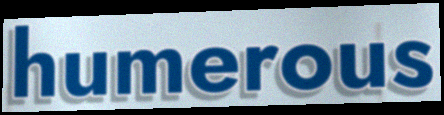
humerous